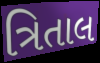
ત્રિતાલ